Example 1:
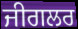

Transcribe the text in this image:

ਜੀਗਲਰ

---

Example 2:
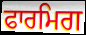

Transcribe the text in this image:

ਫਾਰਮਿਗ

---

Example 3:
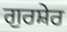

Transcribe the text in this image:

ਗੁਰਸ਼ੇਰ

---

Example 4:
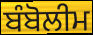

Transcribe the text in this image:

ਬੰਬੋਲੀਮ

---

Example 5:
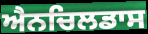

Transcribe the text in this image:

ਐਨਚਿਲਡਾਸ